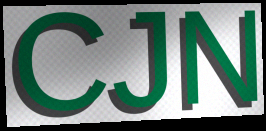
CJN